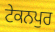
ਟੇਕਨਪੁਰ